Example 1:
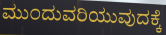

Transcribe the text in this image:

ಮುಂದುವರಿಯುವುದಕ್ಕೆ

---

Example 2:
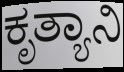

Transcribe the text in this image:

ಕೃತ್ಯಾನಿ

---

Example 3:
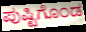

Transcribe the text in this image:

ಪುಷ್ಟಿಗೊಂಡ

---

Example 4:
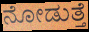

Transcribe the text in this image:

ನೋಡುತ್ತೆ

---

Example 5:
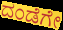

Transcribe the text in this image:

ದಂಡೆಗೇ